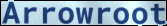
Arrowroot